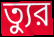
ত্যুর